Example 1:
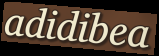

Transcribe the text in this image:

adidibea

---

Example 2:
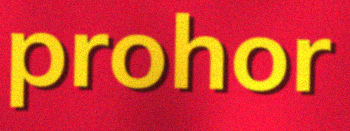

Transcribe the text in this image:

prohor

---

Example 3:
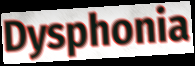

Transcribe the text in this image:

Dysphonia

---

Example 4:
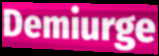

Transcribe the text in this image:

Demiurge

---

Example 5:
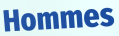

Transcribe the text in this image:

Hommes